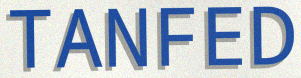
TANFED